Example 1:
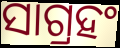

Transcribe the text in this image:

ସାଗ୍ରହଂ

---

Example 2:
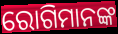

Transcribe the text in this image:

ରୋଗିମାନଙ୍କ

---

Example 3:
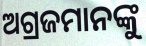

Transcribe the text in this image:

ଅଗ୍ରଜମାନଙ୍କୁ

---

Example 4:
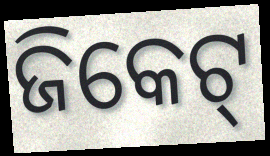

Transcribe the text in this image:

ଜିକେଟ୍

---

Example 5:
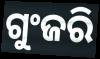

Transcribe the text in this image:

ଗୁଂଜରି